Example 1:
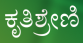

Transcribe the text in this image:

ಕೃತಿಶ್ರೇಣಿ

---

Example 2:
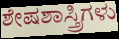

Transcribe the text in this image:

ಶೇಷಶಾಸ್ತ್ರಿಗಳು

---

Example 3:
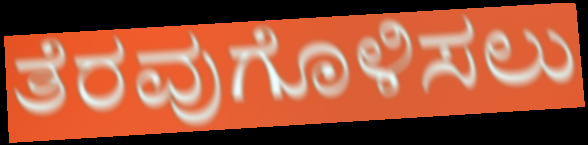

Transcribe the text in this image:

ತೆರವುಗೊಳಿಸಲು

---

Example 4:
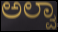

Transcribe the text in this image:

ಅಲ್ವಾ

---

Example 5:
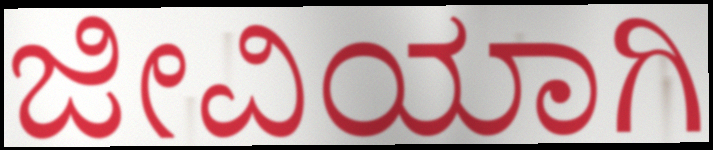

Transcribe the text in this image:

ಜೀವಿಯಾಗಿ